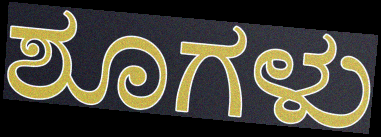
ಶೂಗಳು